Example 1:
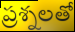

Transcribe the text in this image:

ప్రశ్నలతో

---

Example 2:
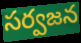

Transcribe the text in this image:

సర్వజన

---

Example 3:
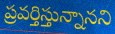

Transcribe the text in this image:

ప్రవర్తిస్తున్నానని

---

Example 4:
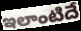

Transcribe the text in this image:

ఇలాంటిదే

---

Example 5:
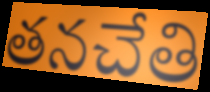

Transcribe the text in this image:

తనచేతి